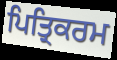
ਪਿਤ੍ਰਿਕਰਮ